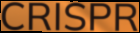
CRISPR